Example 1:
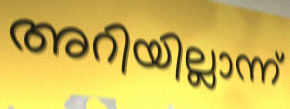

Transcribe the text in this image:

അറിയില്ലാന്ന്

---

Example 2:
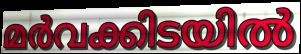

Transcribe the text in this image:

മർവക്കിടയിൽ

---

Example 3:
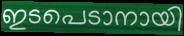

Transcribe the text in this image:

ഇടപെടാനായി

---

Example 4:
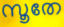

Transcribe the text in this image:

സൂതേ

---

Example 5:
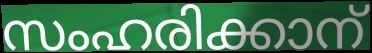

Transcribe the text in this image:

സംഹരിക്കാന്